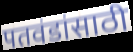
पतवंडांसाठी